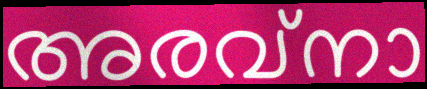
അരവ്നാ